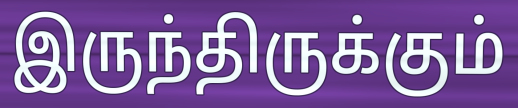
இருந்திருக்கும்